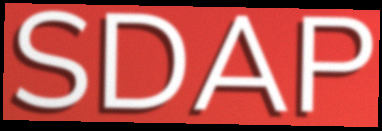
SDAP